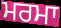
ਮਰਮਾ